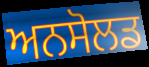
ਅਨਸੋਲਡ